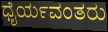
ಧೈರ್ಯವಂತರು